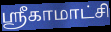
ஸ்ரீகாமாட்சி